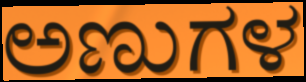
ಅಣುಗಳ